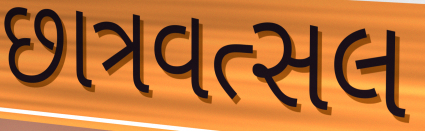
છાત્રવત્સલ